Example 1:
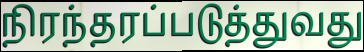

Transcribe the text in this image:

நிரந்தரப்படுத்துவது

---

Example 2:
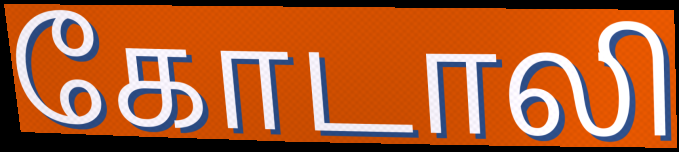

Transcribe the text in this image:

கோடாலி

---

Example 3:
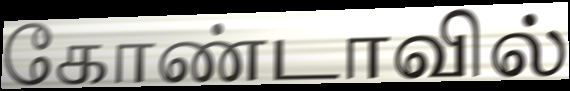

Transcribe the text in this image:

கோண்டாவில்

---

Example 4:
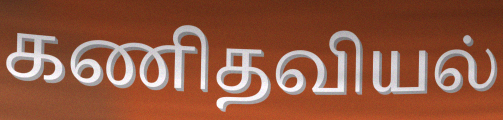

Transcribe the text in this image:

கணிதவியல்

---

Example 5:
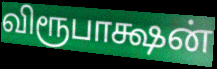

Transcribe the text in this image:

விரூபாக்ஷன்